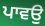
ਪਾਵਉ